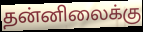
தன்னிலைக்கு